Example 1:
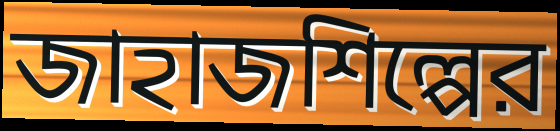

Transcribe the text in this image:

জাহাজশিল্পের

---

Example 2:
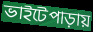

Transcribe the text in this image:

ভাইটেপাড়ায়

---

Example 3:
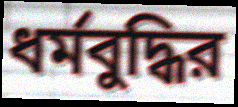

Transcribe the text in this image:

ধর্মবুদ্ধির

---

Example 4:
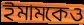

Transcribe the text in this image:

ইমামকেও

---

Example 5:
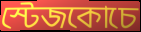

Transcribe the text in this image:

স্টেজকোচে